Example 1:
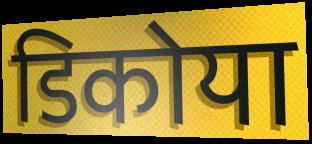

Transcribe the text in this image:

डिकोया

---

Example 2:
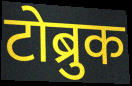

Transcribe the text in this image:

टोब्रुक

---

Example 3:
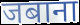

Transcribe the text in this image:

जबाना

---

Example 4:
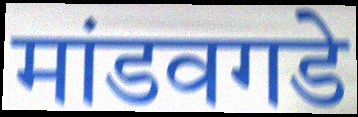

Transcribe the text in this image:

मांडवगडे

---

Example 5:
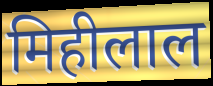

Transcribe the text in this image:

मिहीलाल